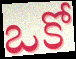
ఒకో